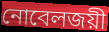
নোবেলজয়ী